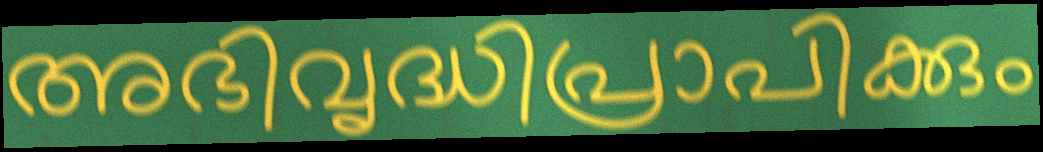
അഭിവൃദ്ധിപ്രാപിക്കും